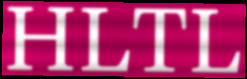
HLTL